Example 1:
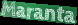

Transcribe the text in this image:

Maranta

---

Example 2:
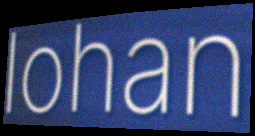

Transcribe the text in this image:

lohan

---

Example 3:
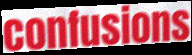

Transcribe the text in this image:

confusions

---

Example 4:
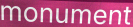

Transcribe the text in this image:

monument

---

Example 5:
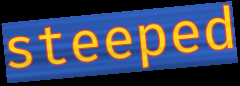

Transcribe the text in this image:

steeped